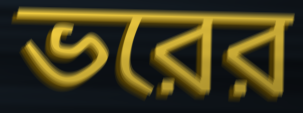
ভরের